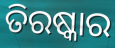
ତିରଷ୍କାର